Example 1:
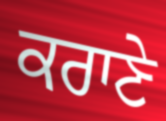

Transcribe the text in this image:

ਕਰਾਣੇ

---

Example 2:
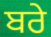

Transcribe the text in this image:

ਬਰੇ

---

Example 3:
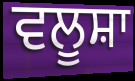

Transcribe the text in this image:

ਵਲੂਸ਼ਾ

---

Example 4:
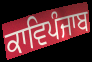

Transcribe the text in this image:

ਕਾਵਿਪੰਜਾਬ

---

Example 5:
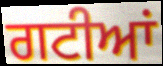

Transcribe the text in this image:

ਗਟੀਆਂ